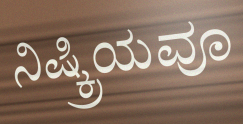
ನಿಷ್ಕ್ರಿಯವೂ